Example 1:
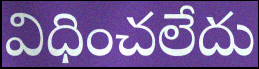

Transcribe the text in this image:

విధించలేదు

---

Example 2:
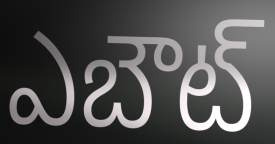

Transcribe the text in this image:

ఎబౌట్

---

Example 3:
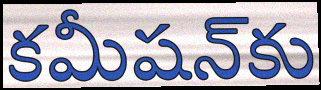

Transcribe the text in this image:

కమీషన్‌కు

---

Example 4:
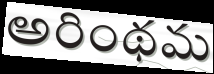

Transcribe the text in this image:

అరింథమ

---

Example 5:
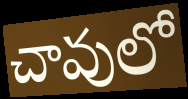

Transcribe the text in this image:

చావులో